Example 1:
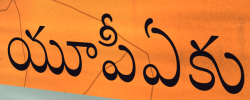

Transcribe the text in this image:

యూపీఏకు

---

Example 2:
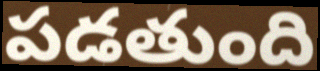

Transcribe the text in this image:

పడతుంది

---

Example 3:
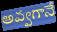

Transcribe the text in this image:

అవ్వగానే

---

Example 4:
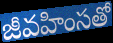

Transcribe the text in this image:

జీవహింసతో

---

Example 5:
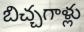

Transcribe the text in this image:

బిచ్చగాళ్లు